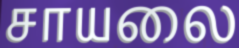
சாயலை